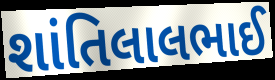
શાંતિલાલભાઈ